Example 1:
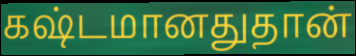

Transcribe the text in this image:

கஷ்டமானதுதான்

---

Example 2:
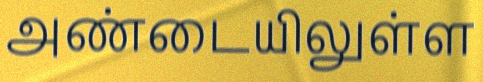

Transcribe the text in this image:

அண்டையிலுள்ள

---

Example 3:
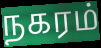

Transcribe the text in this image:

நகரம்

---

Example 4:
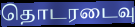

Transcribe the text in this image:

தொடரடைவு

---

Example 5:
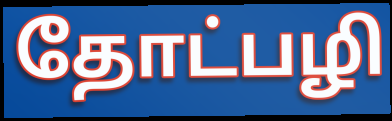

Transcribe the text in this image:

தோட்பழி